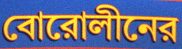
বোরোলীনের